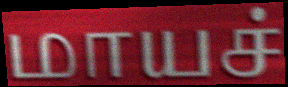
மாயச்